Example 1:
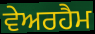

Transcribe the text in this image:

ਵੇਅਰਹੈਮ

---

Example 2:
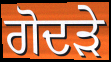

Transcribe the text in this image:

ਗੋਦੜੇ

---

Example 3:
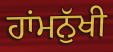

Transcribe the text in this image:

ਹਾਂਮਨੁੱਖੀ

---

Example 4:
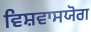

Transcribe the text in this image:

ਵਿਸ਼ਵਾਸਯੋਗ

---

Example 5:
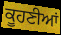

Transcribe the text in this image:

ਕੂਹਣੀਆਂ